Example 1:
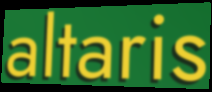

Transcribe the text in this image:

altaris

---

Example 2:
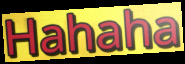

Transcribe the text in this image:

Hahaha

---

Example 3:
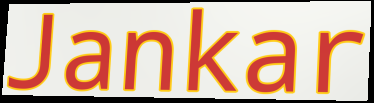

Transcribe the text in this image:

Jankar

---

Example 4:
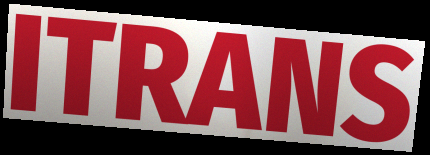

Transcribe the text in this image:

ITRANS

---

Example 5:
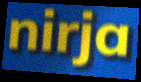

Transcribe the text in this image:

nirja